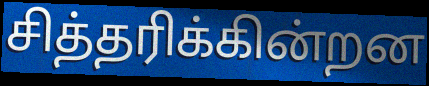
சித்தரிக்கின்றன